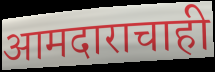
आमदाराचाही